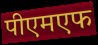
पीएमएफ